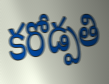
కరోడ్పతి